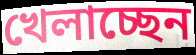
খেলাচ্ছেন